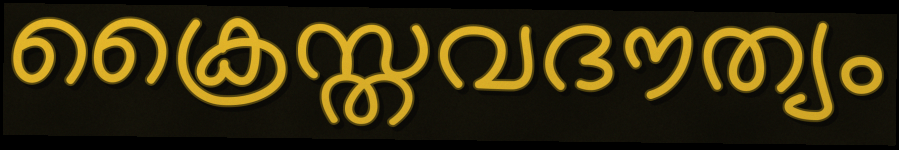
ക്രൈസ്തവദൗത്യം